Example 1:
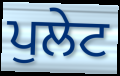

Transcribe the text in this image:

ਪੁਲੇਟ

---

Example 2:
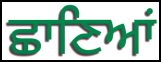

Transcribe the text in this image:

ਛਾਣਿਆਂ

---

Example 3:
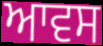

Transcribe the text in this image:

ਆਵਸ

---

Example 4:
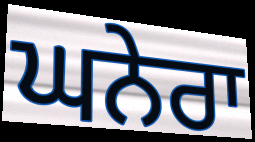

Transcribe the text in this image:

ਘਨੇਰਾ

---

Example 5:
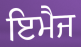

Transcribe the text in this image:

ਇਮੈਜ